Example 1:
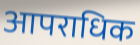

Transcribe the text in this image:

आपराधिक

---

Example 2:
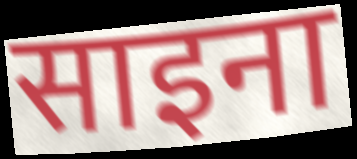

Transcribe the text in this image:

साइना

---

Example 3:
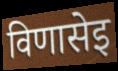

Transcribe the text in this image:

विणासेइ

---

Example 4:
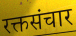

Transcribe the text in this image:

रक्तसंचार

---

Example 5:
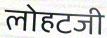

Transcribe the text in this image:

लोहटजी